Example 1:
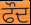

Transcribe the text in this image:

ਫੌਦ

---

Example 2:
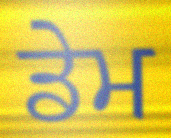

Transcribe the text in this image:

ਡੇਮ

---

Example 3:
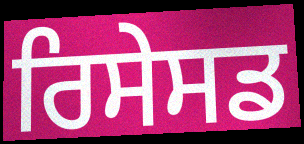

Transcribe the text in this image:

ਰਿਸੇਸਡ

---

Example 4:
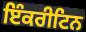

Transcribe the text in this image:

ਇੰਕਰੀਟਿਨ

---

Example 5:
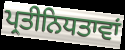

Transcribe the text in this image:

ਪ੍ਰਤੀਨਿਧਤਾਵਾਂ